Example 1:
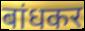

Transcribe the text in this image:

बांधकर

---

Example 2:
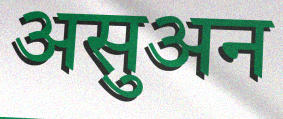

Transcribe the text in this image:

असुअन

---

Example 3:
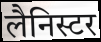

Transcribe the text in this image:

लैनिस्टर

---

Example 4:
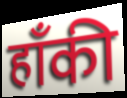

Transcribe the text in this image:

हॉंकी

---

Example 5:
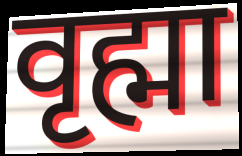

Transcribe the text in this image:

वृह्मा